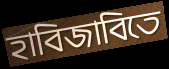
হাবিজাবিতে